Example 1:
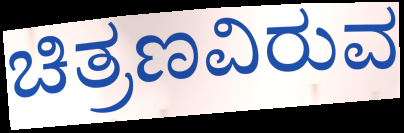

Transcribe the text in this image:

ಚಿತ್ರಣವಿರುವ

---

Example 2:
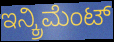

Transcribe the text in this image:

ಇನ್ಕ್ರಿಮೆಂಟ್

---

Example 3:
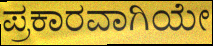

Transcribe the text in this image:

ಪ್ರಕಾರವಾಗಿಯೇ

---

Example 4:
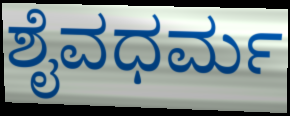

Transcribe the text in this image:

ಶೈವಧರ್ಮ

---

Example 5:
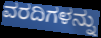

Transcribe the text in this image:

ವರದಿಗಳನ್ನು